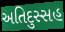
અતિદુસ્સહ